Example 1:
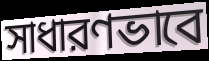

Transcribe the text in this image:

সাধারণভাবে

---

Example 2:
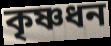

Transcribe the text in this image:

কৃষ্ণধন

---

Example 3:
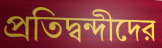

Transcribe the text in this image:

প্রতিদ্বন্দীদের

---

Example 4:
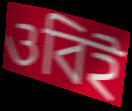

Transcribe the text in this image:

ওবিই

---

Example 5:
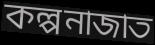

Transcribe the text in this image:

কল্পনাজাত